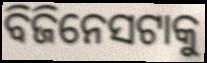
ବିଜିନେସଟାକୁ